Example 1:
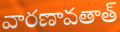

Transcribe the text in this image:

వారణావతాత్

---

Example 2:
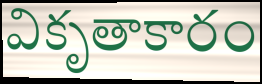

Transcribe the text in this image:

వికృతాకారం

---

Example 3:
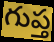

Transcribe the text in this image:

గుప్త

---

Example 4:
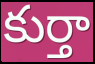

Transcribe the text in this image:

కుర్తా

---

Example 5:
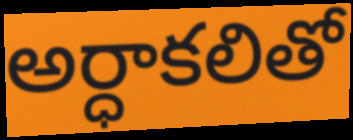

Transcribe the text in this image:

అర్ధాకలితో